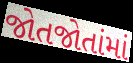
જોતજોતાંમાં